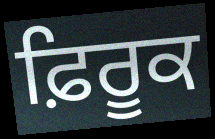
ਫ਼ਿਰੂਕ